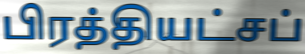
பிரத்தியட்சப்